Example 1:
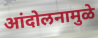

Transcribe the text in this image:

आंदोलनामुळे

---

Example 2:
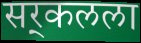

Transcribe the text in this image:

सर्कलला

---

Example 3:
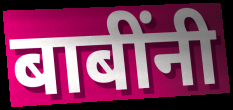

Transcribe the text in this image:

बाबींनी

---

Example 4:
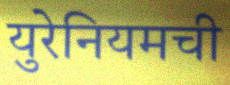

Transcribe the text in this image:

युरेनियमची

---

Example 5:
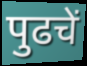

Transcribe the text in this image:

पुढचें